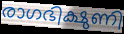
രാഗഭിക്ഷുണി